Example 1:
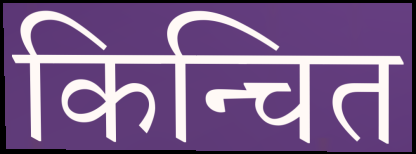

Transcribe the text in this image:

किन्चित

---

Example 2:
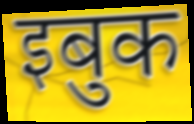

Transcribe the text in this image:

इबुक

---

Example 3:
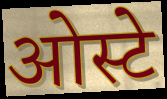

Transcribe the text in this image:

ओस्टे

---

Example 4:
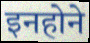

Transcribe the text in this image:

इनहोने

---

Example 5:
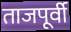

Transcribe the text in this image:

ताजपूर्वी